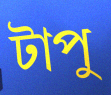
টাপু